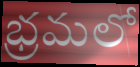
భ్రమలో